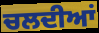
ਚਲਦੀਆਂ